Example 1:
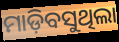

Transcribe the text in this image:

ମାଡ଼ିବସୁଥିଲା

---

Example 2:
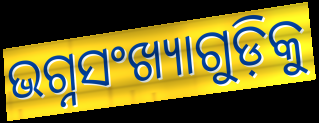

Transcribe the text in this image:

ଭଗ୍ନସଂଖ୍ୟାଗୁଡ଼ିକୁ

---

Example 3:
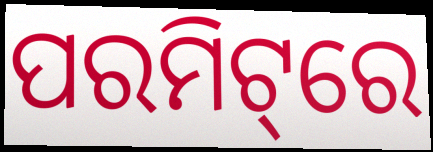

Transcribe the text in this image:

ପରମିଟ୍‌ରେ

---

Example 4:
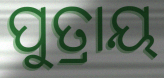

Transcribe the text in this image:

ପୁତ୍ରାୟ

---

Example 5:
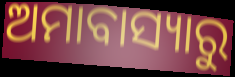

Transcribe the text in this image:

ଅମାବାସ୍ୟାରୁ